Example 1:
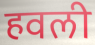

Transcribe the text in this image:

हवली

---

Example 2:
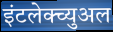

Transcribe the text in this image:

इंटलेक्च्युअल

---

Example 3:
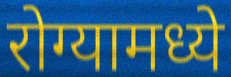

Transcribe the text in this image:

रोग्यामध्ये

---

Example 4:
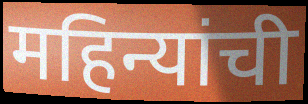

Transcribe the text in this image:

महिन्यांची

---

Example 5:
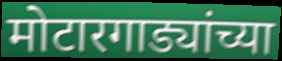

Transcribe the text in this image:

मोटारगाड्यांच्या